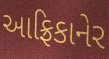
આફ્રિકાનેર